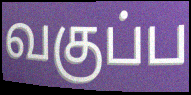
வகுப்ப